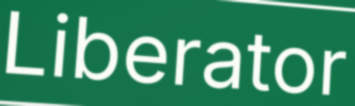
Liberator